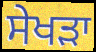
ਸੇਖੜਾ